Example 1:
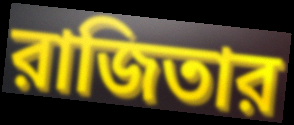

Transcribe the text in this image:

রাজিতার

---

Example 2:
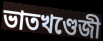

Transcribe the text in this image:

ভাতখণ্ডেজী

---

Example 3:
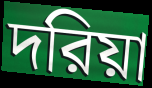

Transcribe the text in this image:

দরিয়া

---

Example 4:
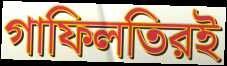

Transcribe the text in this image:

গাফিলতিরই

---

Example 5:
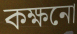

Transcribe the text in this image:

কক্ষনো